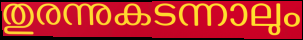
തുരന്നുകടന്നാലും